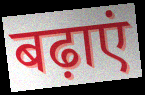
बढ़ाएं